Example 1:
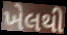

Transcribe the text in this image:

ખેલથી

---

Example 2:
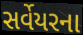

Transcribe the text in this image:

સર્વેયરના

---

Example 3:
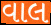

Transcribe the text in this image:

વાલ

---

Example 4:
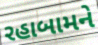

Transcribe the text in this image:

રહાબામને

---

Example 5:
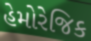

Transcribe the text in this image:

હેમોરેજિક